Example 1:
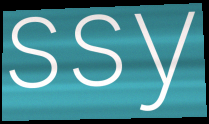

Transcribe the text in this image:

ssy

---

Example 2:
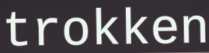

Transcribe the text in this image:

trokken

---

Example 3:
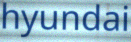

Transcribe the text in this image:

hyundai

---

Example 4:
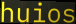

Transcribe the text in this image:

huios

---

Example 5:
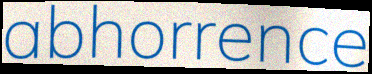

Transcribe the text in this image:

abhorrence